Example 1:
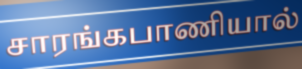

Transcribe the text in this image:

சாரங்கபாணியால்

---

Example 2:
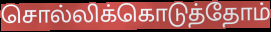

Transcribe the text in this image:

சொல்லிக்கொடுத்தோம்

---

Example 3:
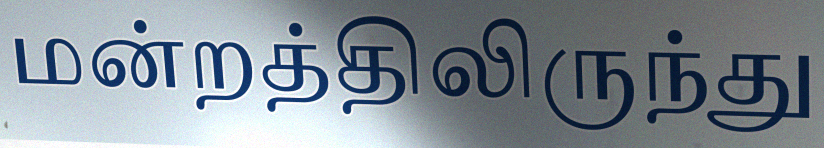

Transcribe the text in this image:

மன்றத்திலிருந்து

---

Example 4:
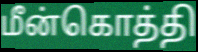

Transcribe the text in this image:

மீன்கொத்தி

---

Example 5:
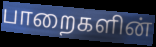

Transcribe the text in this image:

பாறைகளின்